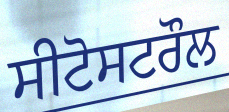
ਸੀਟੋਸਟਰੌਲ